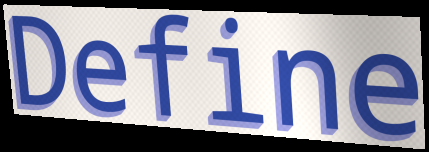
Define